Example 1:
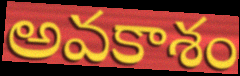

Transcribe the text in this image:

అవకాశం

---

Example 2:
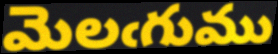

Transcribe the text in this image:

మెలఁగుము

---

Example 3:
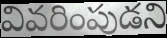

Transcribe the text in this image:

వివరింపుడని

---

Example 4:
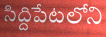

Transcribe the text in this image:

సిద్దిపేటలోని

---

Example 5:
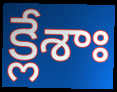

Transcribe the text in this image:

క్లేశాః